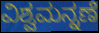
ವಿಶ್ವಮನ್ನಣೆ